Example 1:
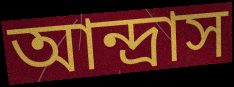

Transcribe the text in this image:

আন্দ্রাস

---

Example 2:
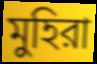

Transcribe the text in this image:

মুহিরা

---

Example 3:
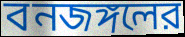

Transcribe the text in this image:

বনজঙ্গলের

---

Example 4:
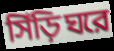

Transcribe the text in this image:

সিঁড়িঘরে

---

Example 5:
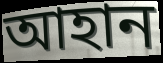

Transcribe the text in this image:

আহান